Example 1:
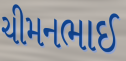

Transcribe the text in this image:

ચીમનભાઈ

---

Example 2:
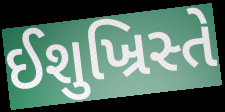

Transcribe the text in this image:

ઈશુખ્રિસ્તે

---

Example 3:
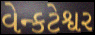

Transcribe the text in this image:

વેન્કટેશ્વર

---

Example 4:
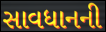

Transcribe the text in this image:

સાવધાનની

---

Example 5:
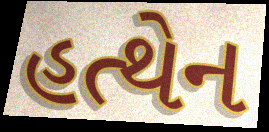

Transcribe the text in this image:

હત્થેન